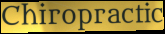
Chiropractic